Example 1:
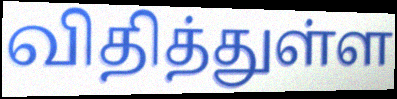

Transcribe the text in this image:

விதித்துள்ள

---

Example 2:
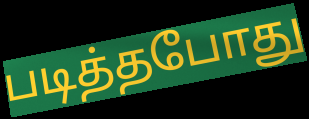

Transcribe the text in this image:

படித்தபோது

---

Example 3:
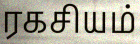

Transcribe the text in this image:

ரகசியம்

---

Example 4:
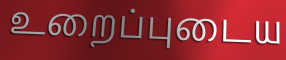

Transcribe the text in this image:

உறைப்புடைய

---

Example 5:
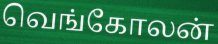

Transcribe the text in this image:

வெங்கோலன்